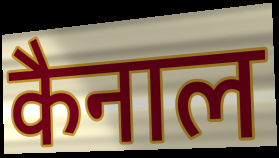
कैनाल